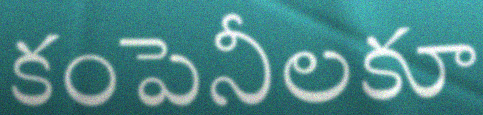
కంపెనీలకూ